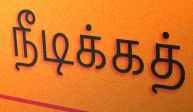
நீடிக்கத்